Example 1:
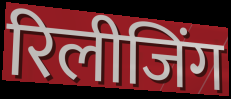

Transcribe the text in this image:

रिलीजिंग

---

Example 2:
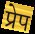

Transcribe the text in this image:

प्रेप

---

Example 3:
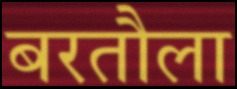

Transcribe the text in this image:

बरतौला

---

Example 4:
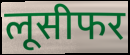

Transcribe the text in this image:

लूसीफर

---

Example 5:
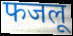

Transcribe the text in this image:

फजलू